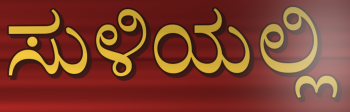
ಸುಳಿಯಲ್ಲಿ